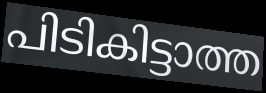
പിടികിട്ടാത്ത